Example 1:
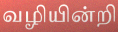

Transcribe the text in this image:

வழியின்றி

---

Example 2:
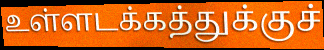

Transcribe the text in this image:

உள்ளடக்கத்துக்குச்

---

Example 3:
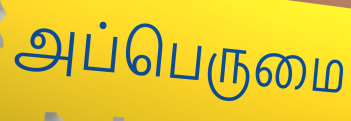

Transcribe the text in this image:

அப்பெருமை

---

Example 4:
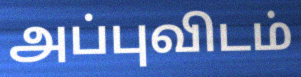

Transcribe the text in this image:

அப்புவிடம்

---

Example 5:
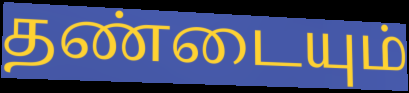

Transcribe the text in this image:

தண்டையும்